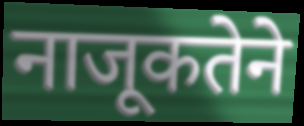
नाजूकतेने